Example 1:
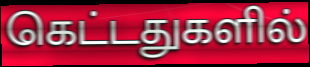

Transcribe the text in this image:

கெட்டதுகளில்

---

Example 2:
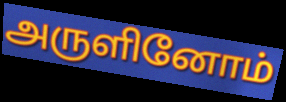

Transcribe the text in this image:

அருளினோம்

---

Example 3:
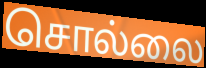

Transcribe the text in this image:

சொல்லை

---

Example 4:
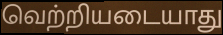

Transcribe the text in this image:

வெற்றியடையாது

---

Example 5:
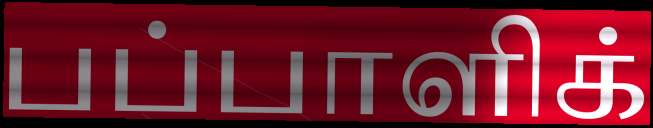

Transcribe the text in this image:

பப்பாளிக்